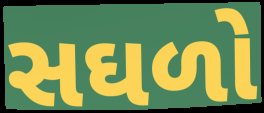
સઘળો